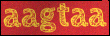
aagtaa